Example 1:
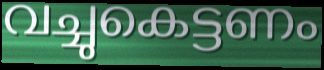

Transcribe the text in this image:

വച്ചുകെട്ടണം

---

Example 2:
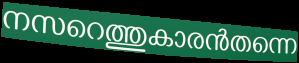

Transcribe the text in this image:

നസറെത്തുകാരൻതന്നെ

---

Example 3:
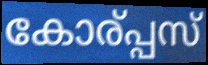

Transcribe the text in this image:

കോര്പ്പസ്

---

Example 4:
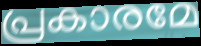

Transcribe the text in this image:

പ്രകാരമേ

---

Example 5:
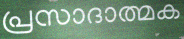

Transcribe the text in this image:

പ്രസാദാത്മക